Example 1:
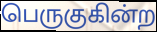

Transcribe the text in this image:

பெருகுகின்ற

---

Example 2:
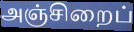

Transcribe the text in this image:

அஞ்சிறைப்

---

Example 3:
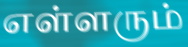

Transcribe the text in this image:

எள்ளரும்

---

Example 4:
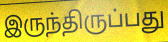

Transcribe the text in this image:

இருந்திருப்பது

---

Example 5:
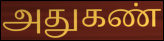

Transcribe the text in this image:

அதுகண்